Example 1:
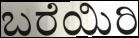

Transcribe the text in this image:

ಬರೆಯಿರಿ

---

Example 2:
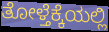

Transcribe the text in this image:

ತೋಳ್ತೆಕ್ಕೆಯಲ್ಲಿ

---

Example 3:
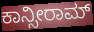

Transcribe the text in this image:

ಕಾನ್ಸೀರಾಮ್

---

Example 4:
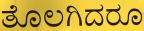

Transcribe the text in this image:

ತೊಲಗಿದರೂ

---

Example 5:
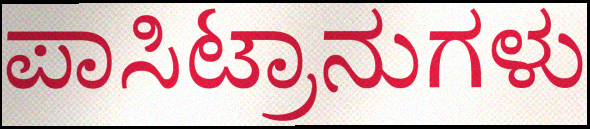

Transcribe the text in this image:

ಪಾಸಿಟ್ರಾನುಗಳು